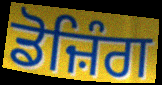
ਡੋਜ਼ਿੰਗ